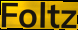
Foltz